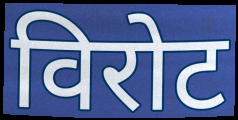
विरोट